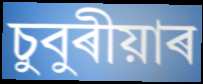
চুবুৰীয়াৰ